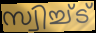
സ്വിച്ച്ട്